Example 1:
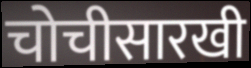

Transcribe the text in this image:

चोचीसारखी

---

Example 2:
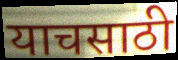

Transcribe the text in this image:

याचसाठी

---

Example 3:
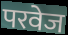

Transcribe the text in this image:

परवेज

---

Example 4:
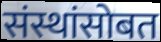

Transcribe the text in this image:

संस्थांसोबत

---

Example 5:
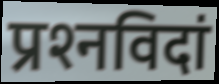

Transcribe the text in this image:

प्रश्नविदां